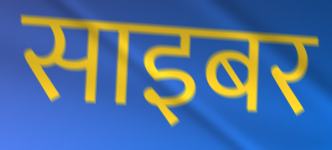
साइबर